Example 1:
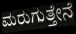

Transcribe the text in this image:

ಮರುಗುತ್ತೇನೆ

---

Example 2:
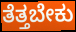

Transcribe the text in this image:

ತೆತ್ತಬೇಕು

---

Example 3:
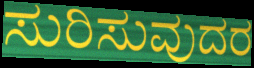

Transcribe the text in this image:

ಸುರಿಸುವುದರ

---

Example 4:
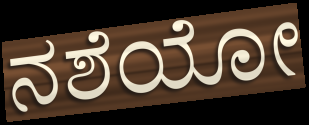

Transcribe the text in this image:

ನಶೆಯೋ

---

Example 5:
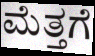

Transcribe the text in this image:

ಮೆತ್ತಗೆ